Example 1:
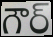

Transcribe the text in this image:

గౌర్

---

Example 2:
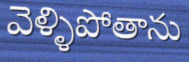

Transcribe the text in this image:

వెళ్ళిపోతాను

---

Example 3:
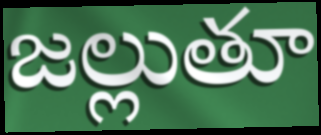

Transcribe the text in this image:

జల్లుతూ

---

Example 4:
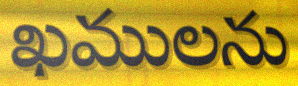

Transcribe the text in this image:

ఖములను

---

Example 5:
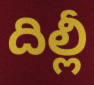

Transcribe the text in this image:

దిల్లీ